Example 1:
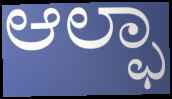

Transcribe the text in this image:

ಆಲ್ಫಾ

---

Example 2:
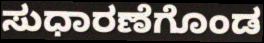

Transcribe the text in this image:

ಸುಧಾರಣೆಗೊಂಡ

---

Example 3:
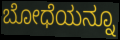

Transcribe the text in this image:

ಬೋಧೆಯನ್ನೂ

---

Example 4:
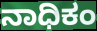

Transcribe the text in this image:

ನಾಧಿಕಂ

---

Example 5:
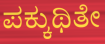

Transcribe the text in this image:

ಪಕ್ಕುಥಿತೇ